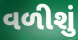
વળીશું